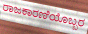
ರಾಜಕಾರಣಿಯೊಬ್ಬರ